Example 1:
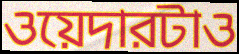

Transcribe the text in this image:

ওয়েদারটাও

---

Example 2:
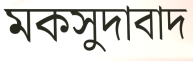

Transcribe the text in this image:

মকসুদাবাদ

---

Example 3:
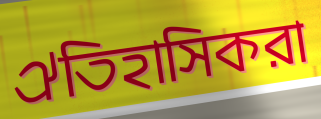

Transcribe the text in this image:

ঐতিহাসিকরা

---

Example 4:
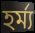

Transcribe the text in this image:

হর্ম্য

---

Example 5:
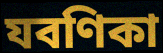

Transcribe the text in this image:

যবণিকা